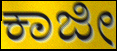
ಕಾಜೀ